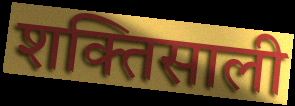
शक्तिसाली